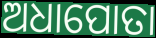
ଅଧାପୋତା